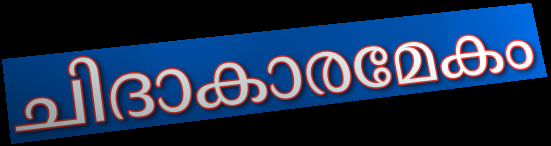
ചിദാകാരമേകം